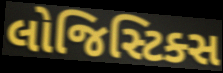
લોજિસ્ટિક્સ